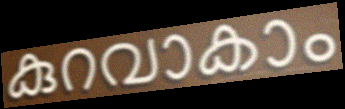
കുറവാകാം